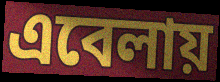
এবেলায়